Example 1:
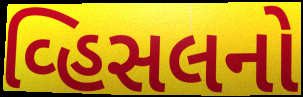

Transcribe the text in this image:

વ્હિસલનો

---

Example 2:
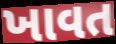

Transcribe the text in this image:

ખાવત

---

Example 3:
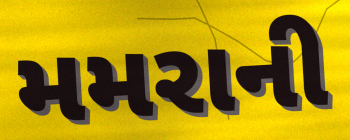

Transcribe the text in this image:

મમરાની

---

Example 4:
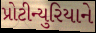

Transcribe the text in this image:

પ્રોટીન્યુરિયાને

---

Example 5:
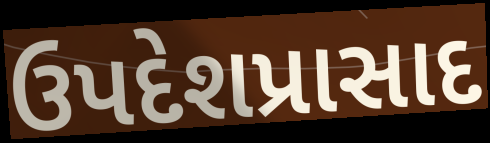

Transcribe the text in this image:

ઉપદેશપ્રાસાદ